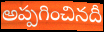
అప్పగించినదీ